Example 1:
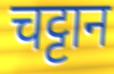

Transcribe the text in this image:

चट्टान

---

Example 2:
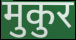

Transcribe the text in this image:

मुकुर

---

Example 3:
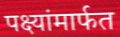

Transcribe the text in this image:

पक्ष्यांमार्फत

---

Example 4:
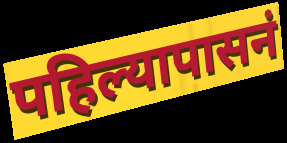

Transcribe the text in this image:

पहिल्यापासनं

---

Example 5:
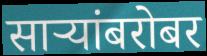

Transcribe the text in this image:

साऱ्यांबरोबर